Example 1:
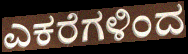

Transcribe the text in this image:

ಎಕರೆಗಳಿಂದ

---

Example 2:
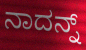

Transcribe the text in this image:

ನಾದನ್ನ್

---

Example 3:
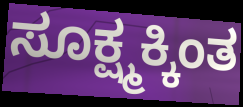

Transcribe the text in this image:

ಸೂಕ್ಷ್ಮಕ್ಕಿಂತ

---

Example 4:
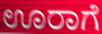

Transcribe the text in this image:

ಊರಾಗೆ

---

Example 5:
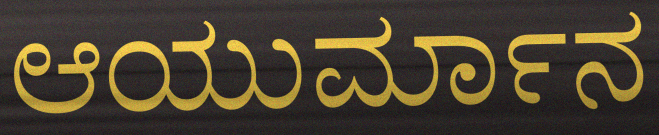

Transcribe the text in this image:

ಆಯುರ್ಮಾನ